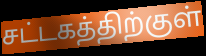
சட்டகத்திற்குள்